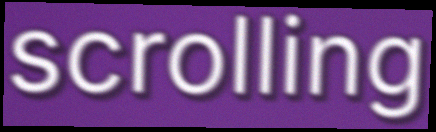
scrolling